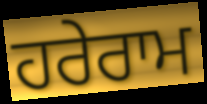
ਹਰੇਰਾਮ